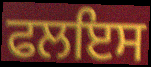
ਫਲਇਸ